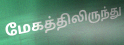
மேகத்திலிருந்து